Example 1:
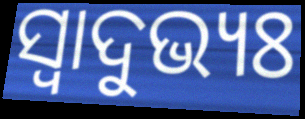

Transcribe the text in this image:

ସ୍ବାଦୁଭ୍ୟଃ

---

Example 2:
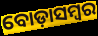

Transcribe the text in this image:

ବୋଡ଼ାସମ୍ବର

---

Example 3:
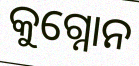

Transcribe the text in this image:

କୁଗ୍ନୋନ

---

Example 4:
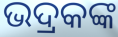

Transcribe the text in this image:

ଭଦ୍ରକଙ୍କ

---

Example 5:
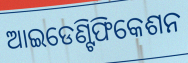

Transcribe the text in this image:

ଆଇଡେଣ୍ଟିଫିକେଶନ